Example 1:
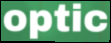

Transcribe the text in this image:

optic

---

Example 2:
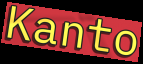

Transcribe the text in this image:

Kanto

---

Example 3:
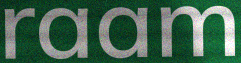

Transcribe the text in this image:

raam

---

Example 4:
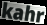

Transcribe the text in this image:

kahr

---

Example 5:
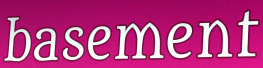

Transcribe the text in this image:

basement